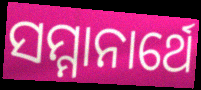
ସମ୍ମାନାର୍ଥେ